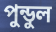
পুন্ডুল